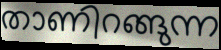
താണിറങ്ങുന്ന